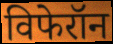
विफेरॉन